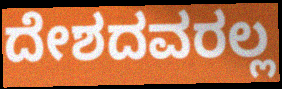
ದೇಶದವರಲ್ಲ